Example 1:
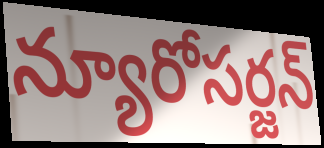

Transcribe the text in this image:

న్యూరోసర్జన్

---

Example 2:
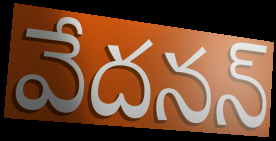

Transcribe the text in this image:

వేదనన్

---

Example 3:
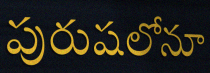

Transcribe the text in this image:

పురుషలోనూ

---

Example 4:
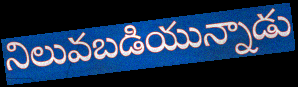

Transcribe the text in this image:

నిలువబడియున్నాడు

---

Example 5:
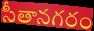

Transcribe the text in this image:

సీతానగరం